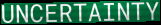
UNCERTAINTY